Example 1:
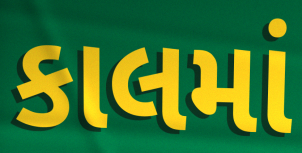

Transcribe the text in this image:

કાલમાં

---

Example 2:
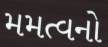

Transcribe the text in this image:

મમત્વનો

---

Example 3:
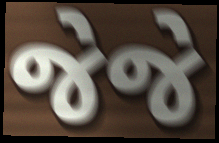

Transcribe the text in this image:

જેજે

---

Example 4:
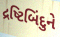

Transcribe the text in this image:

દ્રષ્ટિબિંદુને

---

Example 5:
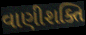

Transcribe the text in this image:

વાણીશક્તિ